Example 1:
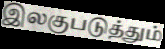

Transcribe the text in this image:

இலகுபடுத்தும்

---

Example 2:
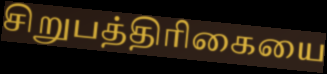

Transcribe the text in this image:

சிறுபத்திரிகையை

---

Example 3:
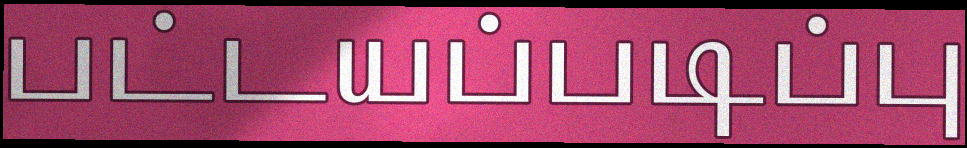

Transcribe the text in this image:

பட்டயப்படிப்பு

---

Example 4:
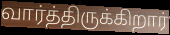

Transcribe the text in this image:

வார்த்திருக்கிறார்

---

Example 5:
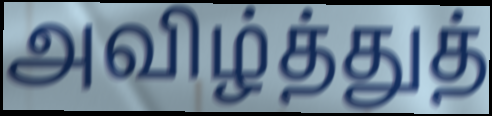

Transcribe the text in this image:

அவிழ்த்துத்